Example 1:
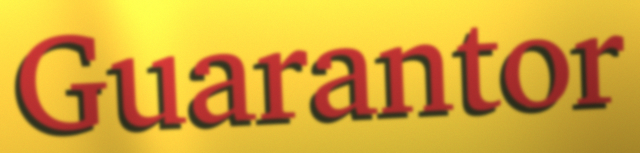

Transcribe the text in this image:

Guarantor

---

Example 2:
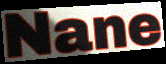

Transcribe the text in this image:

Nane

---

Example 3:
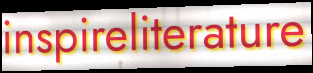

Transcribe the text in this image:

inspireliterature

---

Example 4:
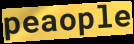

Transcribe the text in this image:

peaople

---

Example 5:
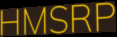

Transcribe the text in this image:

HMSRP